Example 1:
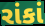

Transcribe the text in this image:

રાંકાં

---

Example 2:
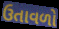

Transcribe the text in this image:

ઉતાવળો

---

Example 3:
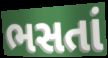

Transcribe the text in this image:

ભસતાં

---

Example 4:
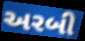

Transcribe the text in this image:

અરબી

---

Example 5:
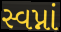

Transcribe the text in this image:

સ્વપ્નાં